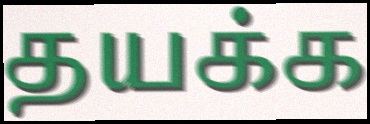
தயக்க